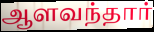
ஆளவந்தார்